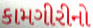
કામગીરીનો